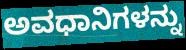
ಅವಧಾನಿಗಳನ್ನು